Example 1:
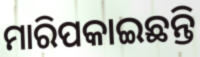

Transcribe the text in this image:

ମାରିପକାଇଛନ୍ତି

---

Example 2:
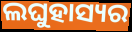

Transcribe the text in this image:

ଲଘୁହାସ୍ୟର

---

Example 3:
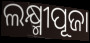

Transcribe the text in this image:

ଲକ୍ଷ୍ମୀପୂଜା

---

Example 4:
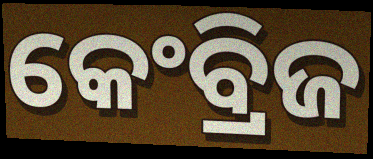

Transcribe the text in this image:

କେଂବ୍ରିଜ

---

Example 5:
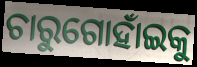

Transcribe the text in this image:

ଚାରୁଗୋହାଁଇକୁ